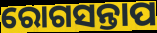
ରୋଗସନ୍ତାପ